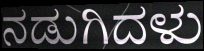
ನಡುಗಿದಳು